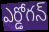
ఎర్డోగన్